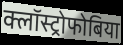
क्लॉस्ट्रोफोबिया